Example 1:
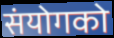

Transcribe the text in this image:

संयोगको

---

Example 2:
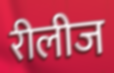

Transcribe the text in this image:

रीलीज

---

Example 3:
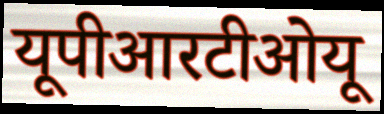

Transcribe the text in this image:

यूपीआरटीओयू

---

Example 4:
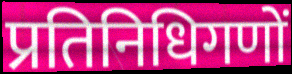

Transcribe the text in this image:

प्रतिनिधिगणों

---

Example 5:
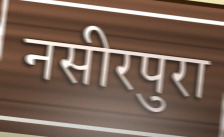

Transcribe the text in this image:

नसीरपुरा